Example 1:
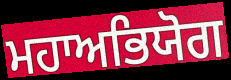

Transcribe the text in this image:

ਮਹਾਅਭਿਯੋਗ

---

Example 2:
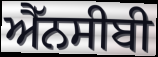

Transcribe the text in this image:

ਐੱਨਸੀਬੀ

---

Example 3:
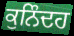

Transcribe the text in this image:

ਕੁਨਿੰਦਹ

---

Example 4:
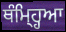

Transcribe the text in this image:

ਥੰਮ੍ਹ੍ਹਿਆ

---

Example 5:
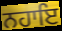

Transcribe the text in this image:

ਨਹਾਇ